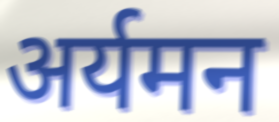
अर्यमन